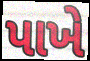
પાખે